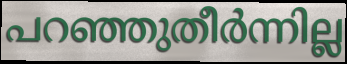
പറഞ്ഞുതീർന്നില്ല